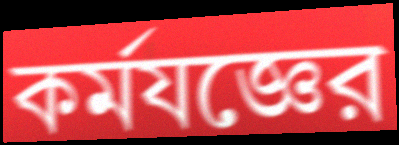
কর্মযজ্ঞের